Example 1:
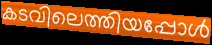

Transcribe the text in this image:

കടവിലെത്തിയപ്പോൾ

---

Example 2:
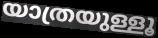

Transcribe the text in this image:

യാത്രയുള്ളൂ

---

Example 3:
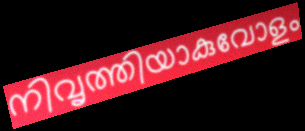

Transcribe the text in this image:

നിവൃത്തിയാകുവോളം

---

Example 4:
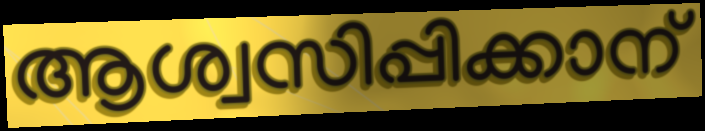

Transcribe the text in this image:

ആശ്വസിപ്പിക്കാന്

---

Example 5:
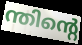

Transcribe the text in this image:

ന്തിന്റെ